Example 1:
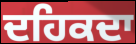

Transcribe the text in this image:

ਦਹਿਕਦਾ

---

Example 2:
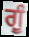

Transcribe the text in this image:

ਗੂੰ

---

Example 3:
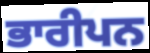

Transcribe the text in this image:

ਭਾਰੀਪਨ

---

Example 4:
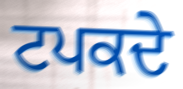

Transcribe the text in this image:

ਟਪਕਦੇ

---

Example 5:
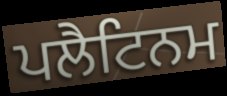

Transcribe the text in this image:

ਪਲੈਟਿਨਮ